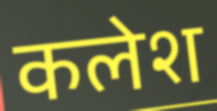
कलेश